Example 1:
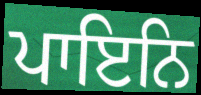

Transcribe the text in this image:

ਪਾਇਨਿ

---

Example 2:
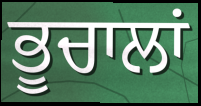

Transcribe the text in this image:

ਭੂਚਾਲਾਂ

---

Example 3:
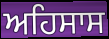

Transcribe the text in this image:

ਅਹਿਸਾਸ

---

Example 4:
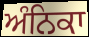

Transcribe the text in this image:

ਅੰਨਿਕਾ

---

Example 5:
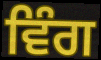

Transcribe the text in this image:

ਵਿੰਗ